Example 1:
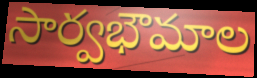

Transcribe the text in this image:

సార్వభౌమాల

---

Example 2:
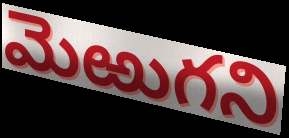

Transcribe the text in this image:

మెఱుగని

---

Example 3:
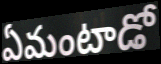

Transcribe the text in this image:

ఏమంటాడో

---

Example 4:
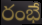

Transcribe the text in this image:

రంభే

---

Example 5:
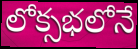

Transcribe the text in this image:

లోక్సభలోనే